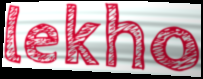
lekho